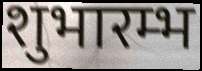
शुभारम्‍भ